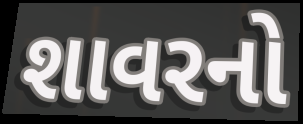
શાવરનો